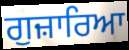
ਗੁਜ਼ਾਰਿਆ